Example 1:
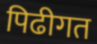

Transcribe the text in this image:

पिढीगत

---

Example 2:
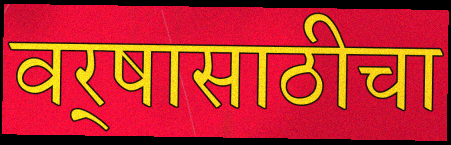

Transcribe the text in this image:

वर्षासाठीचा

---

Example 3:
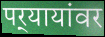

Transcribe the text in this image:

पर्यायांवर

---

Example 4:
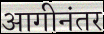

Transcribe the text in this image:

आगीनंतर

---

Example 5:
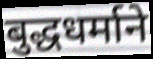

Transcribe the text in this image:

बुद्धधर्माने